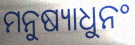
ମନୁଷ୍ୟାଧୁନଂ